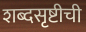
शब्दसृष्टीची